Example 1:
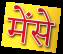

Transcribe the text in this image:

मेंसे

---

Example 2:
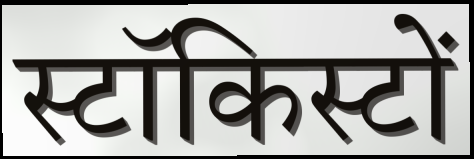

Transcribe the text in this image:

स्टॉकिस्टों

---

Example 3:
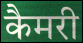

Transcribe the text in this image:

कैमरी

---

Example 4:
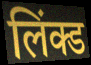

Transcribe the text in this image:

लिंक्ड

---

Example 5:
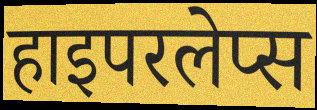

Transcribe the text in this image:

हाइपरलेप्स